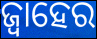
ଜ୍ୱାହେର